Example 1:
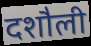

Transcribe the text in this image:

दशौली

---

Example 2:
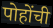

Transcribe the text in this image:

पोहोंची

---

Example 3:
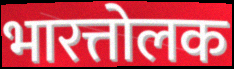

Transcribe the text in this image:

भारत्तोलक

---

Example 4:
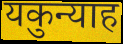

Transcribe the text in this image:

यकुन्याह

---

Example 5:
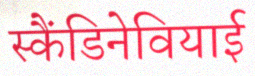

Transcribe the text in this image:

स्कैंडिनेवियाई